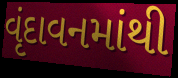
વૃંદાવનમાંથી